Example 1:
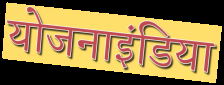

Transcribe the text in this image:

योजनाइंडिया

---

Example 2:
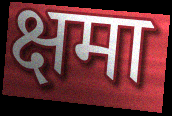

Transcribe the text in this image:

क्षमा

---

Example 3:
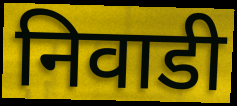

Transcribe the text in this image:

निवाडी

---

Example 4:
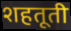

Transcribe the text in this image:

शहतूती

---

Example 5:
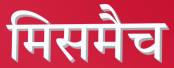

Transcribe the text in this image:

मिसमैच